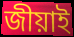
জীয়াই